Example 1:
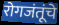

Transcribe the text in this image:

रोगजंतूंचे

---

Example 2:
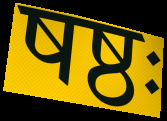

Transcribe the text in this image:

षष्ठः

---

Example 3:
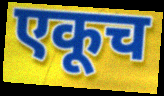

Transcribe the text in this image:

एकूच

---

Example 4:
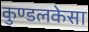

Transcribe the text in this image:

कुण्डलकेसा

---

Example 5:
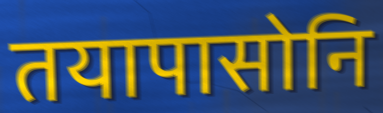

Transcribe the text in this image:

तयापासोनि